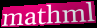
mathml